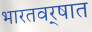
भारतवर्षात